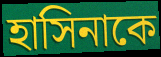
হাসিনাকে